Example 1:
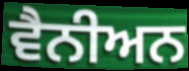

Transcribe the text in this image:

ਵੈਨੀਅਨ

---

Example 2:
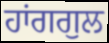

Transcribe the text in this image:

ਹਾਂਗਗੁਲ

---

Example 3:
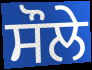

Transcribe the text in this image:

ਸੌਲੇ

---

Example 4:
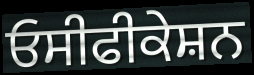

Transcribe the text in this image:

ਓਸੀਫੀਕੇਸ਼ਨ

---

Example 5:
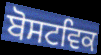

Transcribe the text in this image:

ਬੋਸਟਵਿਕ